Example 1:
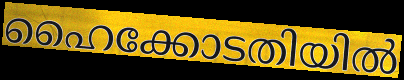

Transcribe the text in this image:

ഹൈക്കോടതിയിൽ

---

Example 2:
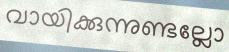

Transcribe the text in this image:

വായിക്കുന്നുണ്ടല്ലോ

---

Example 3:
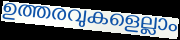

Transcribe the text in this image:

ഉത്തരവുകളെല്ലാം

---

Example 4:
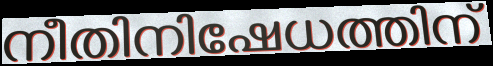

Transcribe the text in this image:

നീതിനിഷേധത്തിന്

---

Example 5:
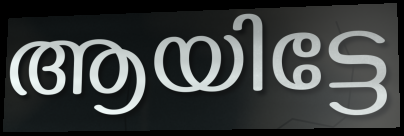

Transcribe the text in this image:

ആയിട്ടേ